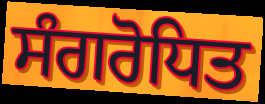
ਸੰਗਰੋਧਿਤ